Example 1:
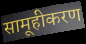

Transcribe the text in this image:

सामूहीकरण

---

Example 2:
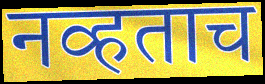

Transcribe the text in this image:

नव्हताच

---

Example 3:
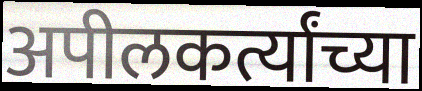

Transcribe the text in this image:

अपीलकर्त्यांच्या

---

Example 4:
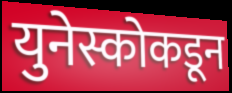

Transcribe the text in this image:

युनेस्कोकडून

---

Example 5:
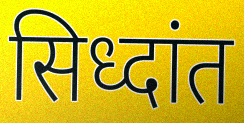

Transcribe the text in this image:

सिध्दांत